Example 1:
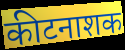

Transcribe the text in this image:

कीटनाशक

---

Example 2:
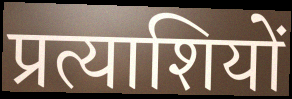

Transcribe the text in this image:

प्रत्याशियों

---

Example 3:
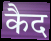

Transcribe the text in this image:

कैद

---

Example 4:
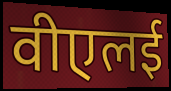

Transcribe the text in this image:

वीएलई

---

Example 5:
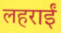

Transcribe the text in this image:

लहराईं